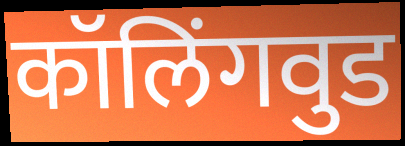
कॉलिंगवुड